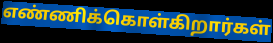
எண்ணிக்கொள்கிறார்கள்